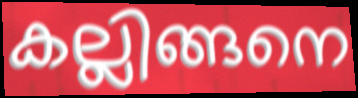
കല്ലിങ്ങനെ